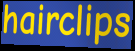
hairclips